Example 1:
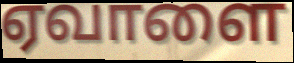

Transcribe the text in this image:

ஏவாளை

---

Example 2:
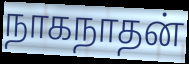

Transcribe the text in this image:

நாகநாதன்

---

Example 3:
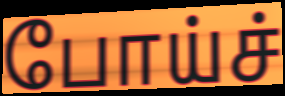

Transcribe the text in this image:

போய்ச்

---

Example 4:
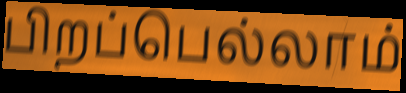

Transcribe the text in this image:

பிறப்பெல்லாம்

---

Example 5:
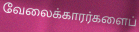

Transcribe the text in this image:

வேலைக்காரர்களைப்